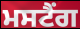
ਮਸਟੈਂਗ